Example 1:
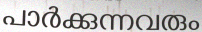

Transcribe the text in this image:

പാർക്കുന്നവരും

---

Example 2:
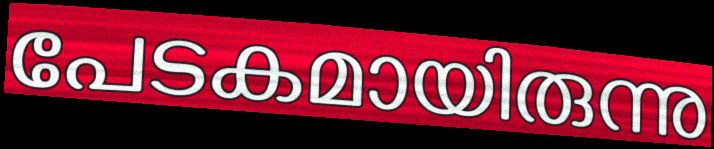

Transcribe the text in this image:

പേടകമായിരുന്നു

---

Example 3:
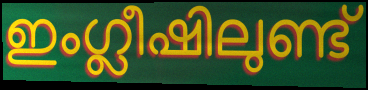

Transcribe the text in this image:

ഇംഗ്ലീഷിലുണ്ട്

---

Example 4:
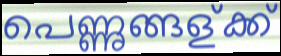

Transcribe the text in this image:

പെണ്ണുങ്ങള്ക്ക്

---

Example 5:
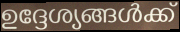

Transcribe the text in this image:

ഉദ്ദേശ്യങ്ങൾക്ക്